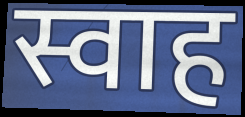
स्वाह